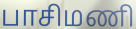
பாசிமணி